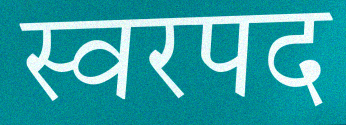
स्वरपद